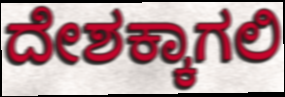
ದೇಶಕ್ಕಾಗಲಿ